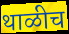
थाळीच